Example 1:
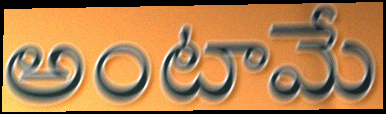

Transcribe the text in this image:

అంటామే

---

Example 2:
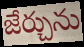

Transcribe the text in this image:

జేర్చును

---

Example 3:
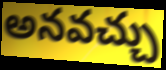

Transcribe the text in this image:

అనవచ్చు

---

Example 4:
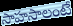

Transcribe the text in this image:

సాహసాలంటే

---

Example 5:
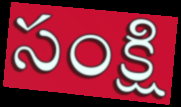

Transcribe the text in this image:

సంక్షి